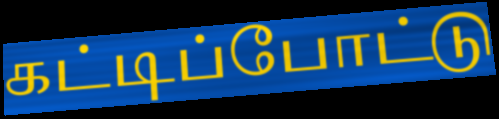
கட்டிப்போட்டு